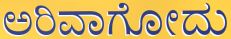
ಅರಿವಾಗೋದು